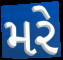
મરે